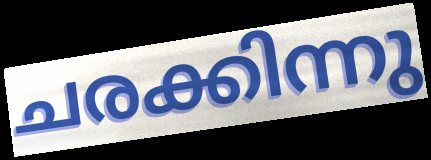
ചരക്കിന്നു